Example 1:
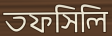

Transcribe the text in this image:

তফসিলি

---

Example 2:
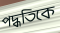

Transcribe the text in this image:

পদ্ধতিকে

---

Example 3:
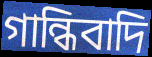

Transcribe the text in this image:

গান্ধিবাদি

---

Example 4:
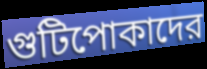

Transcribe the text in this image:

গুটিপোকাদের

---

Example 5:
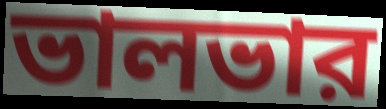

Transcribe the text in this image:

ভালভার